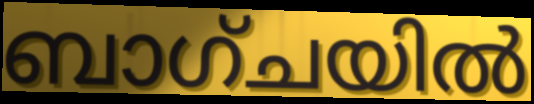
ബാഗ്ചയിൽ